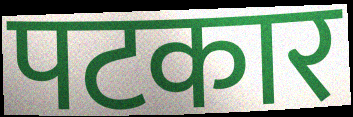
पटकार